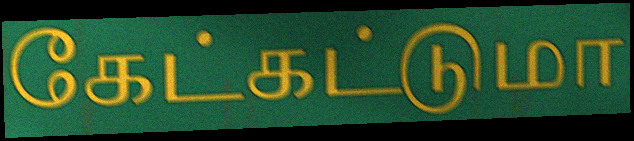
கேட்கட்டுமா